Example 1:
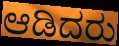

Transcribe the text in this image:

ಆಡಿದರು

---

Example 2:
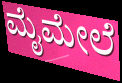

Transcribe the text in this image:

ಮೈಮೇಲೆ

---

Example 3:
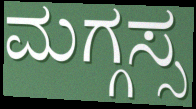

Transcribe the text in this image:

ಮಗ್ಗಸ್ಸ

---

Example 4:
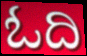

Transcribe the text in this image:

ಓದಿ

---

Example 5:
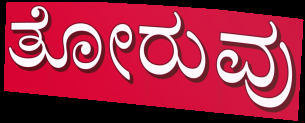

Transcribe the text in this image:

ತೋರುವು